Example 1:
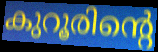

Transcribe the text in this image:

കുറൂരിന്റെ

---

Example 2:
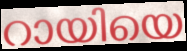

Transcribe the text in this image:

റായിയെ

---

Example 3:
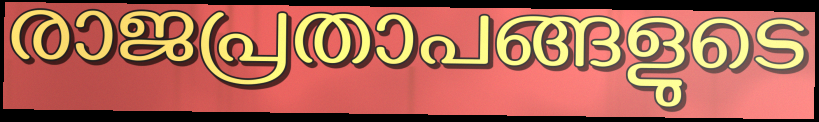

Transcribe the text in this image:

രാജപ്രതാപങ്ങളുടെ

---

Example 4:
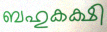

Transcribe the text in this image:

ബഹുകക്ഷി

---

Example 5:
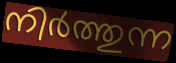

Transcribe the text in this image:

നിർത്തുന്ന